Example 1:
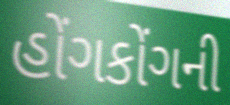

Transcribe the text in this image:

હોંગકોંગની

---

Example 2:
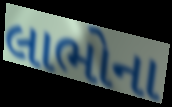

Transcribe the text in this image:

લાભોના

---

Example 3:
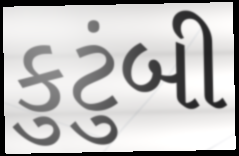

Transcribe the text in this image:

કુટુંબી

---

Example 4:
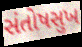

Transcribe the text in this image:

સંતોષસુખ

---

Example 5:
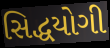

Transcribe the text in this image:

સિદ્ધયોગી